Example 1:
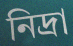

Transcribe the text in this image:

নিদ্রা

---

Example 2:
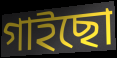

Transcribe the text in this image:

গাইছো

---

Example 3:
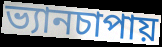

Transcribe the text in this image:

ভ্যানচাপায়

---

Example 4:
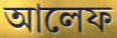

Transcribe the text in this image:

আলেফ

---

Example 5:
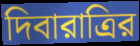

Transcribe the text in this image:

দিবারাত্রির